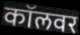
कॉलवर